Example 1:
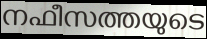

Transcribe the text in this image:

നഫീസത്തയുടെ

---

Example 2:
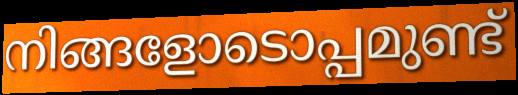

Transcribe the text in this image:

നിങ്ങളോടൊപ്പമുണ്ട്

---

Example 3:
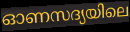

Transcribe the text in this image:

ഓണസദ്യയിലെ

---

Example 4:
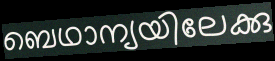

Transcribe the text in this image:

ബെഥാന്യയിലേക്കു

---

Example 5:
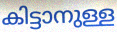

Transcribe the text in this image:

കിട്ടാനുള്ള